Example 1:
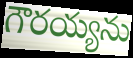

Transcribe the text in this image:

గౌరయ్యను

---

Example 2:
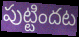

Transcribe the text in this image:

పుట్టిందట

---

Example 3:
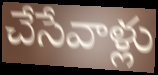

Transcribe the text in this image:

చేసేవాళ్లు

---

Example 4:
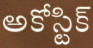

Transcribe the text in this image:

అకోస్టిక్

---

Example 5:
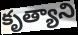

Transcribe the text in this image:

కృత్యాని